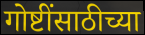
गोष्टींसाठीच्या